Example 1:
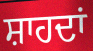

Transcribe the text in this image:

ਸ਼ਾਹਦਾਂ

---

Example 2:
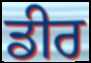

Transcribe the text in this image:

ਡੀਰ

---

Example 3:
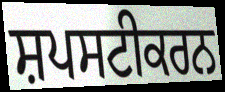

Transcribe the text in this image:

ਸ਼ਪਸਟੀਕਰਨ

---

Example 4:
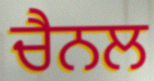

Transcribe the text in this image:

ਚੈਨਲ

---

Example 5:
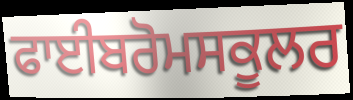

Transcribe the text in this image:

ਫਾਈਬਰੋਮਸਕੂਲਰ